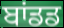
ਬਾਂਡਡ